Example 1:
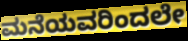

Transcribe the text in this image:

ಮನೆಯವರಿಂದಲೇ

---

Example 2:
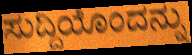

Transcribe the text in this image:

ಸುದ್ದಿಯೊಂದನ್ನು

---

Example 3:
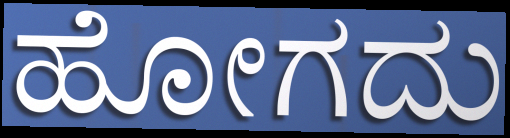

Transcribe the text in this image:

ಹೋಗದು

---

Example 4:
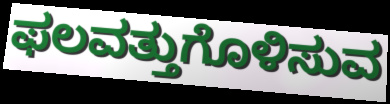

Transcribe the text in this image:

ಫಲವತ್ತುಗೊಳಿಸುವ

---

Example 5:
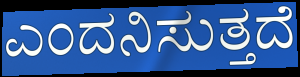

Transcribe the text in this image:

ಎಂದನಿಸುತ್ತದೆ